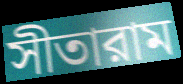
সীতারাম